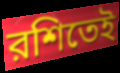
রশিতেই